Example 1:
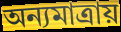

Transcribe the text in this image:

অন্যমাত্রায়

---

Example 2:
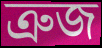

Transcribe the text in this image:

ত্রুজ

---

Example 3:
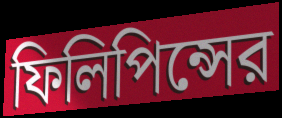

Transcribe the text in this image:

ফিলিপিন্সের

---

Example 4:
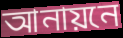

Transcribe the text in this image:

আনায়নে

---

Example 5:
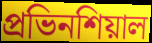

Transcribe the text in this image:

প্রভিনশিয়াল